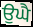
ਉਘੈ